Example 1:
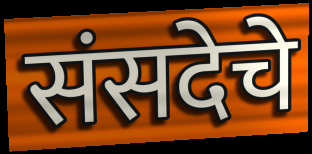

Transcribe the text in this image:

संसदेचे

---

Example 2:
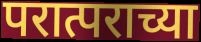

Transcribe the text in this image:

परात्पराच्या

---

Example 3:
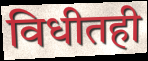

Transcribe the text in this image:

विधीतही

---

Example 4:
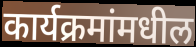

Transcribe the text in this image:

कार्यक्रमांमधील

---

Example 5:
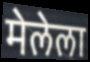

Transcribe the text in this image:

मेलेला